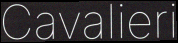
Cavalieri